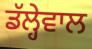
ਡੱਲ੍ਹੇਵਾਲ